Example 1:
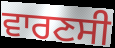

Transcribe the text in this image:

ਵਾਰਣਸੀ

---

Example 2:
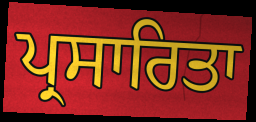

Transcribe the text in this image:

ਪ੍ਰਸਾਰਿਤਾ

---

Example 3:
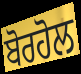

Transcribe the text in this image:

ਬੋਰਹੋਲ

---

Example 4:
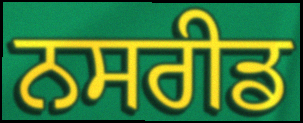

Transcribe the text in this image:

ਨਸਰੀਡ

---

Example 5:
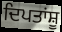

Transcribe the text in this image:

ਦਿਪਤਾਂਸ਼ੂ